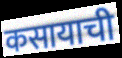
कसायाची